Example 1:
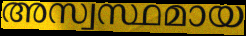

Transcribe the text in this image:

അസ്വസ്ഥമായ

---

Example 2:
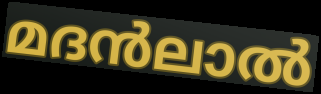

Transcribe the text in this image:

മദൻലാൽ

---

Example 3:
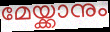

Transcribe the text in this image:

മേയ്ക്കാനും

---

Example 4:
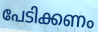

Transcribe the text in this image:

പേടിക്കണം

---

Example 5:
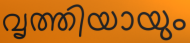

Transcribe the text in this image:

വൃത്തിയായും